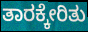
ತಾರಕ್ಕೇರಿತು